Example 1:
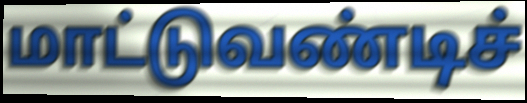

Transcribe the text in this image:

மாட்டுவண்டிச்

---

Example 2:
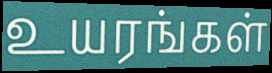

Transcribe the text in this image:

உயரங்கள்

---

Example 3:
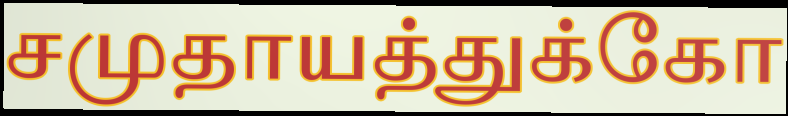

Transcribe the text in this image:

சமுதாயத்துக்கோ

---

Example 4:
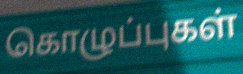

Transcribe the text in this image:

கொழுப்புகள்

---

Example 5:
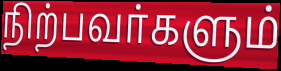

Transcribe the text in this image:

நிற்பவர்களும்